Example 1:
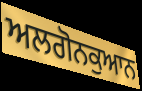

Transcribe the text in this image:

ਅਲਗੋਨਕੁਆਨ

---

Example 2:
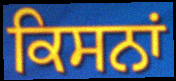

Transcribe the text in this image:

ਕਿਸਨਾਂ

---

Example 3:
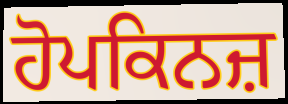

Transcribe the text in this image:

ਹੋਪਕਿਨਜ਼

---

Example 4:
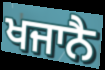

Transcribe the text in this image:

ਖਜਾਨੈ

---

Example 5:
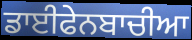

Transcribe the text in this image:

ਡਾਈਫੇਨਬਾਚੀਆ